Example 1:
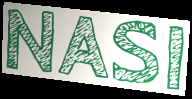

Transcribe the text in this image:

NASI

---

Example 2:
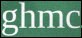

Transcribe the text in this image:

ghmc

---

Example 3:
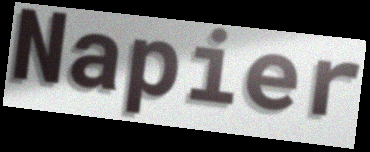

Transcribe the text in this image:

Napier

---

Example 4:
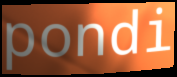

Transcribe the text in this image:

pondi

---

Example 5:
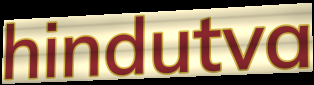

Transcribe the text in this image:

hindutva